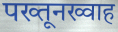
पख्तूनख्वाह